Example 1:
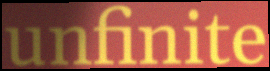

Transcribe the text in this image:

unfinite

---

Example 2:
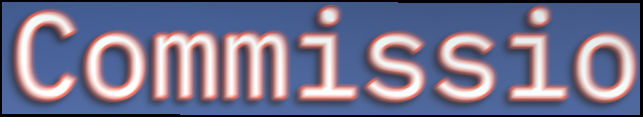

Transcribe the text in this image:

Commissio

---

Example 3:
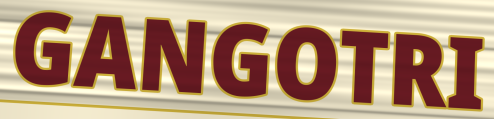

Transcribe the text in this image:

GANGOTRI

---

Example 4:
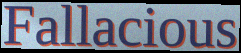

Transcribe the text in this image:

Fallacious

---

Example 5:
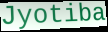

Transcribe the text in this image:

Jyotiba